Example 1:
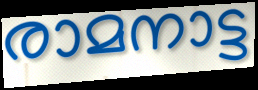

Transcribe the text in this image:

രാമനാട്ട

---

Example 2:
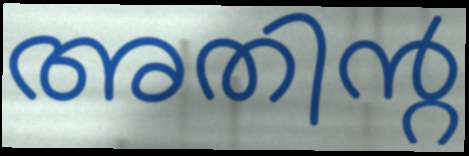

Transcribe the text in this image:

അതിന്റ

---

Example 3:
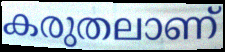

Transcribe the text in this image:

കരുതലാണ്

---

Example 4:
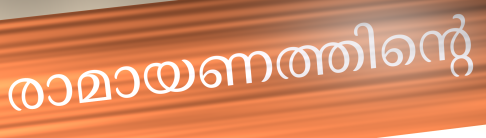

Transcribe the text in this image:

രാമായണത്തിന്റെ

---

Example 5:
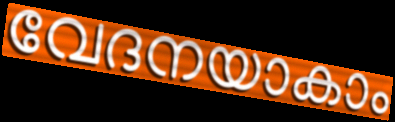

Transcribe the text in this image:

വേദനയാകാം